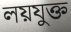
লয়যুক্ত